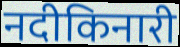
नदीकिनारी